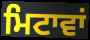
ਮਿਟਾਵਾਂ